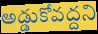
అడ్డుకోవద్దని